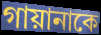
গায়ানাকে